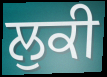
ਲੁਕੀ